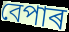
বেপাৰ